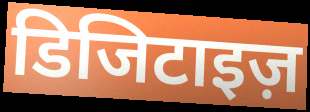
डिजिटाइज़